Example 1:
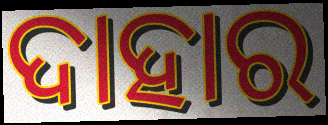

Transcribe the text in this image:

ଦାହାର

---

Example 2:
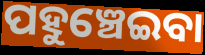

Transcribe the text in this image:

ପହୁଞ୍ଚେଇବା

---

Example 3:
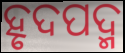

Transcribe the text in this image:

ହୃଦପଦ୍ମ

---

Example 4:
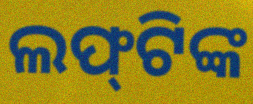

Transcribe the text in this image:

ଲଫ୍‌ଟିଙ୍କ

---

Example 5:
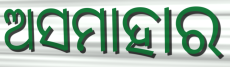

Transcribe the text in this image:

ଅସମାହାର